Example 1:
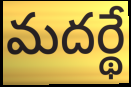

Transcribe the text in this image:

మదర్థే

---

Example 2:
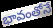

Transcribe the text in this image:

భావంతోనే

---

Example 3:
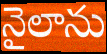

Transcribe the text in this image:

నైలాను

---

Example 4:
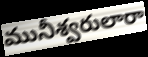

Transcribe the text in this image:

మునీశ్వరులారా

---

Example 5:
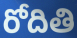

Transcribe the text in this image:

రోదితి